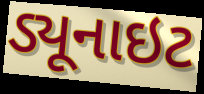
ડ્યૂનાઇટ